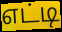
எட்டி